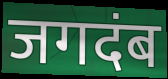
जगदंब